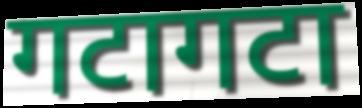
गटागटा